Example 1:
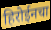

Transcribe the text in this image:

हिरोईनचा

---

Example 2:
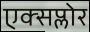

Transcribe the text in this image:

एक्‍सप्लोर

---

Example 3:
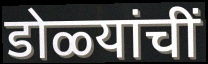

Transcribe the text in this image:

डोळ्यांचीं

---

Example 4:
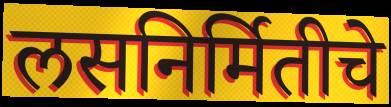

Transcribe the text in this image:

लसनिर्मितीचे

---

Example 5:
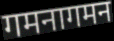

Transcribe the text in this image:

गमनागमन